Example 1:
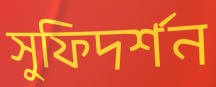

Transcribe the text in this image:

সুফিদর্শন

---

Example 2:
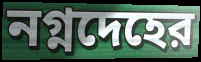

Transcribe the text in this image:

নগ্নদেহের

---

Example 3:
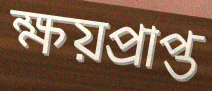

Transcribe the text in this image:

ক্ষয়প্রাপ্ত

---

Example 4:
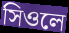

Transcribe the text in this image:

সিওলে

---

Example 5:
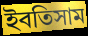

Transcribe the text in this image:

ইবতিসাম